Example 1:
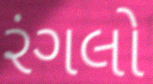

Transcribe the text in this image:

રંગલો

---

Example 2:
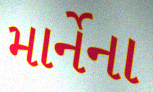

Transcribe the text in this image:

માર્નેના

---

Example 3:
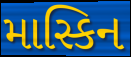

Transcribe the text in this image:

માસ્કિન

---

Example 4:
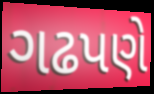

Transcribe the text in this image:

ગઢપણે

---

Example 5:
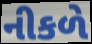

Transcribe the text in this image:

નીકળે